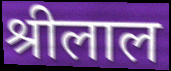
श्रीलाल